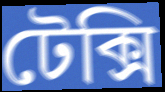
টেক্সি